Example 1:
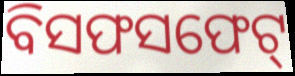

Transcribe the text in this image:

ବିସଫସଫେଟ୍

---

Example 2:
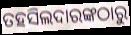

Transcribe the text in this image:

ତହସିଲଦାରଙ୍କଠାରୁ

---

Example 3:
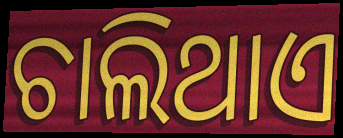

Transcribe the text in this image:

ଚାଲିଥାଏ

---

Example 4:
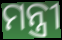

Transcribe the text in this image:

ମନ୍ତ୍ରୀ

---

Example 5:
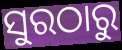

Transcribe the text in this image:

ସୁରଠାରୁ